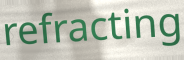
refracting